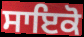
ਸਾਇਕੋ